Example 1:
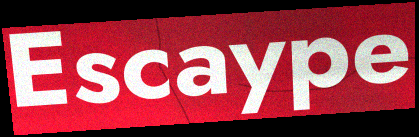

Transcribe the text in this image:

Escaype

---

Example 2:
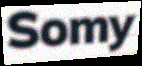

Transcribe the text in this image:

Somy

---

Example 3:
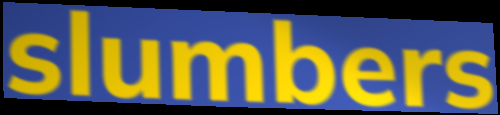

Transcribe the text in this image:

slumbers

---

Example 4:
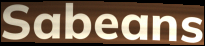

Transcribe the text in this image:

Sabeans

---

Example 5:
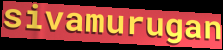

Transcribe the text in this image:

sivamurugan